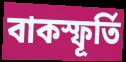
বাকস্ফূর্তি